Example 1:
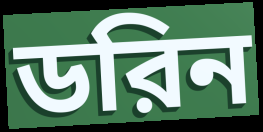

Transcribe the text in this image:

ডরিন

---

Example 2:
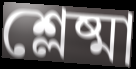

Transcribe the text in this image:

শ্লেষ্মা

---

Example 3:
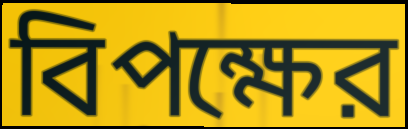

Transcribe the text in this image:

বিপক্ষের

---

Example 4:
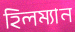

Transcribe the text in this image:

হিলম্যান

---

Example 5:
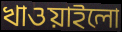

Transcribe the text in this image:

খাওয়াইলো